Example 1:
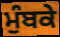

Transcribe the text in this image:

ਮੁੰਬਕੇ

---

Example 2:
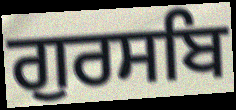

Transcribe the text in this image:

ਗੁਰਸਬਿ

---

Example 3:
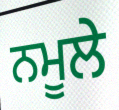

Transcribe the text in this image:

ਨਮੂਲੇ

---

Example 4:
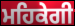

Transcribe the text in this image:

ਮਹਿਕੇਗੀ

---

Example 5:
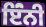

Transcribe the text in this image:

ਇੰਂਨੀ